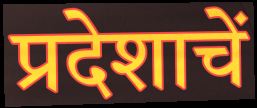
प्रदेशाचें